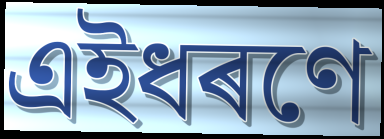
এইধৰণে